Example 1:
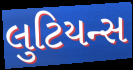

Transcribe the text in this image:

લુટિયન્સ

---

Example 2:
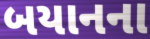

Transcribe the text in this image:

બયાનના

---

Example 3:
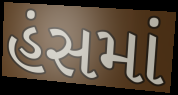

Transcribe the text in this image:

હંસમાં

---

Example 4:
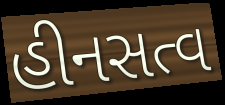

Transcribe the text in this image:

હીનસત્વ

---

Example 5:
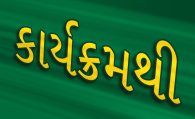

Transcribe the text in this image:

કાર્યક્રમથી